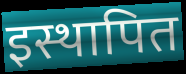
इस्थापित